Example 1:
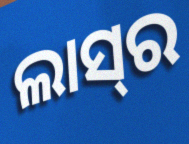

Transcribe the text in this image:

ଲାସ୍‍ର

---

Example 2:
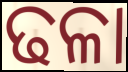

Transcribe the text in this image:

ଢଳା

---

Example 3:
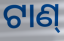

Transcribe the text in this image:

ଟାଣ୍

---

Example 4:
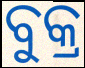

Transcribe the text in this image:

ବୁକ୍ର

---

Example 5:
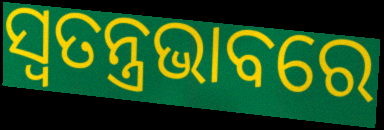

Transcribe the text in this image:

ସ୍ଵତନ୍ତ୍ରଭାବରେ